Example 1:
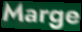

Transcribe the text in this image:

Marge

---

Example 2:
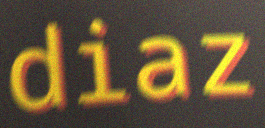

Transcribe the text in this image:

diaz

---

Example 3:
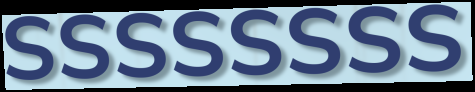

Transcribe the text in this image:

SSSSSSSS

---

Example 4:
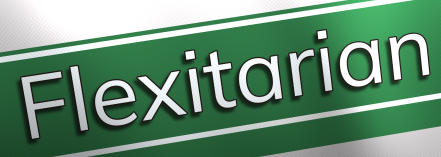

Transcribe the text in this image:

Flexitarian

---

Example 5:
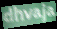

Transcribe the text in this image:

dhvaja